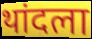
थांदला